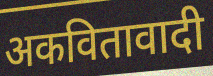
अकवितावादी